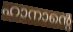
ഹാനാന്റെ